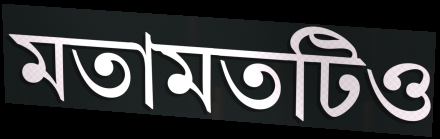
মতামতটিও